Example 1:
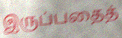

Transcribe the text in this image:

இருப்பதைத்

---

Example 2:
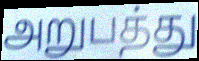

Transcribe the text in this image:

அறுபத்து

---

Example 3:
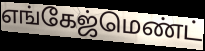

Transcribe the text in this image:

எங்கேஜ்மெண்ட்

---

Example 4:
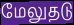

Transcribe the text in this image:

மேலுதடு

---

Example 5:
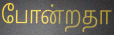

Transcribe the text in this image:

போன்றதா